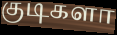
குடிகளா